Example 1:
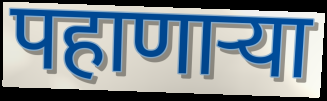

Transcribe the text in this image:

पहाणार्‍या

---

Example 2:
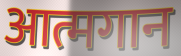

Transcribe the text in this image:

आत्मगान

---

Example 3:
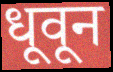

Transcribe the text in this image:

धूवून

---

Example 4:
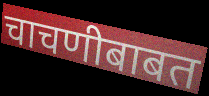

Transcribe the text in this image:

चाचणीबाबत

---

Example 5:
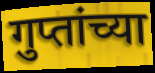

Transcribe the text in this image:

गुप्तांच्या